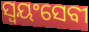
ସ୍ୱୟଂସେବୀ